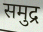
समुद्र